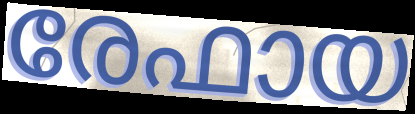
രേഫായ